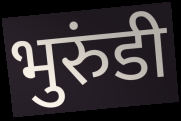
भुरुंडी